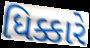
ધિક્કારે